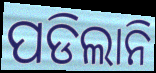
ପଡିଲାନି